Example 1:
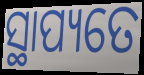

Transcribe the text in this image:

ସ୍ଥାପ୍ୟତେ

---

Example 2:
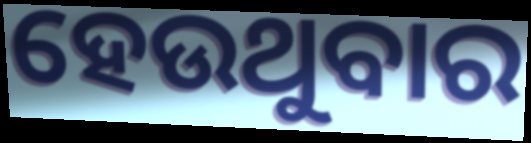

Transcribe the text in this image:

ହେଉଥୁବାର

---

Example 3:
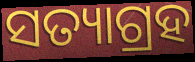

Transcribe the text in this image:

ସତ୍ୟାଗ୍ରହ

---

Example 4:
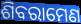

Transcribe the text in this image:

ଶିବରାମେଣ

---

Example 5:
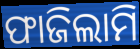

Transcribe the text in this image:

ଫାଜିଲାମି